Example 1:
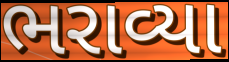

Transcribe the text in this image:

ભરાવ્યા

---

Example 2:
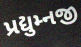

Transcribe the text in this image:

પ્રદ્યુમ્નજી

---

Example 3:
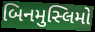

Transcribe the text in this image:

બિનમુસ્લિમો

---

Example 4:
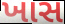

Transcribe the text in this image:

ખાસ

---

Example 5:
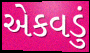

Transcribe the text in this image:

એકવડું